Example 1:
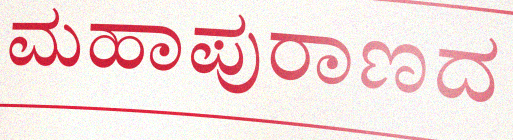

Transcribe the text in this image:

ಮಹಾಪುರಾಣದ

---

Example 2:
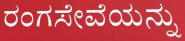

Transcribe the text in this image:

ರಂಗಸೇವೆಯನ್ನು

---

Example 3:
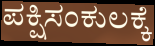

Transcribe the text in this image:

ಪಕ್ಷಿಸಂಕುಲಕ್ಕೆ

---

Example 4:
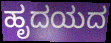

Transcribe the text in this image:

ಹೃದಯದ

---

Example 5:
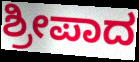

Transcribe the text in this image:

ಶ್ರೀಪಾದ